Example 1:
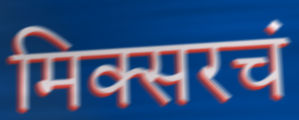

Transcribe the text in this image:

मिक्सरचं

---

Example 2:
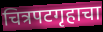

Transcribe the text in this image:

चित्रपटगृहाचा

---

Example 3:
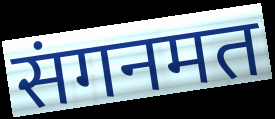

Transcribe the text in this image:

संगनमत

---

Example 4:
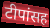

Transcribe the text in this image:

टीपांसह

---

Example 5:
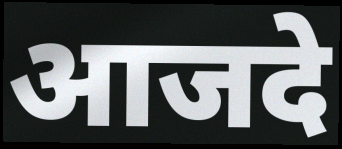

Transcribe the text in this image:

आजदे